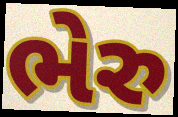
ભેરુ